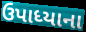
ઉપાધ્યાના